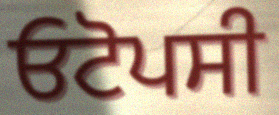
ਓਟੋਪਸੀ